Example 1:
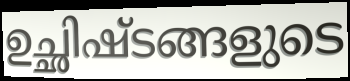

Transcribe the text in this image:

ഉച്ഛിഷ്ടങ്ങളുടെ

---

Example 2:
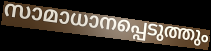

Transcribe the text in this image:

സാമാധാനപ്പെടുത്തും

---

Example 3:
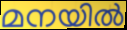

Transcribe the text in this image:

മനയിൽ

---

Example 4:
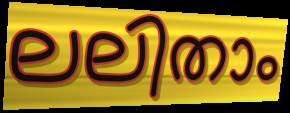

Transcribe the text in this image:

ലലിതാം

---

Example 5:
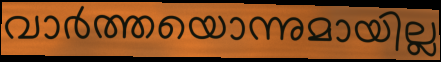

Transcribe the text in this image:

വാർത്തയൊന്നുമായില്ല